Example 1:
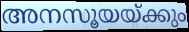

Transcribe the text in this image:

അനസൂയയ്ക്കും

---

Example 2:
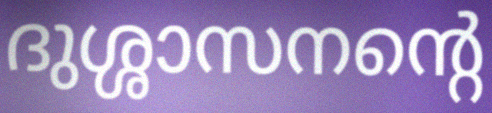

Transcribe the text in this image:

ദുശ്ശാസനന്റെ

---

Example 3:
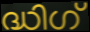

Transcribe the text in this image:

ദ്ധിഗ്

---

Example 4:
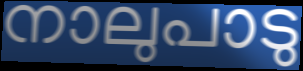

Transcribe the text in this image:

നാലുപാടു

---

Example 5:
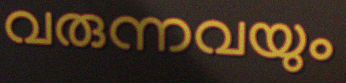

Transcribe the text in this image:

വരുന്നവയും